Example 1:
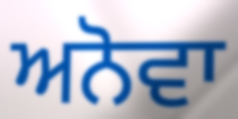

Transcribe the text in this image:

ਅਨੋਵਾ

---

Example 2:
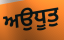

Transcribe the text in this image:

ਅਉਧੂਤੁ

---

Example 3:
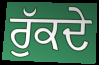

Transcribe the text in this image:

ਰੁੱਕਦੇ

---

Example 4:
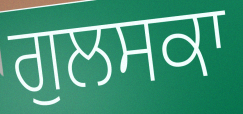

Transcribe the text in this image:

ਗੁਲਸਕਾ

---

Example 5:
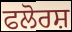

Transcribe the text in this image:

ਫਲੋਰਸ਼